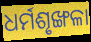
ଧର୍ମଶୃଙ୍ଖଳା